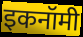
इकनॉमी